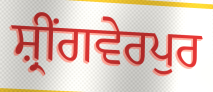
ਸ਼੍ਰੀਂਗਵੇਰਪੁਰ